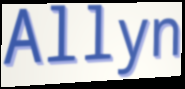
Allyn